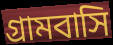
গ্রামবাসি